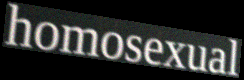
homosexual